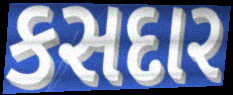
કસદાર